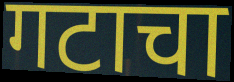
गटाचा